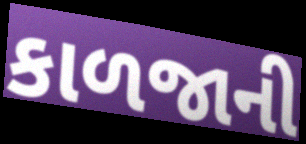
કાળજાની